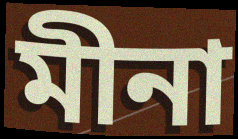
মীনা